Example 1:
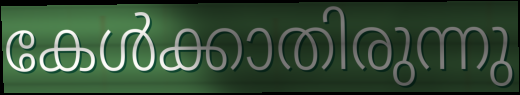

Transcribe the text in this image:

കേൾക്കാതിരുന്നു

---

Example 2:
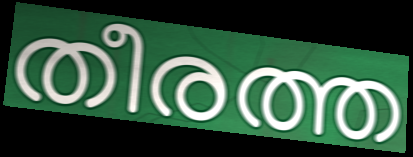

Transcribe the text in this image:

തീരത്ത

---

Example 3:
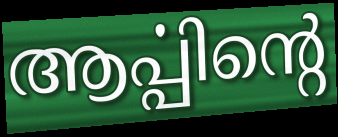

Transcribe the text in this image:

ആൎപ്പിന്റെ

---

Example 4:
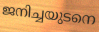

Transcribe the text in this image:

ജനിച്ചയുടനെ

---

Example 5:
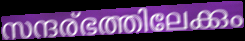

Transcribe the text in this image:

സന്ദര്ഭത്തിലേക്കും